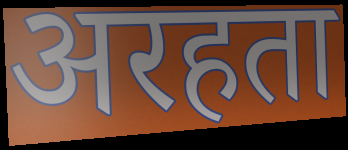
अरहता